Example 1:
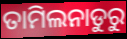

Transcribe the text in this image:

ତାମିଲନାଡୁରୁ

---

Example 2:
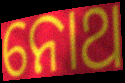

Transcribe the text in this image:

ନୋଥ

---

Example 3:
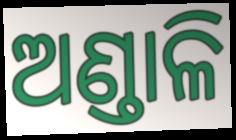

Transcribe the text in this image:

ଅଣ୍ଡାଳି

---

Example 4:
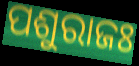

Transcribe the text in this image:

ପଶୁରାଜଃ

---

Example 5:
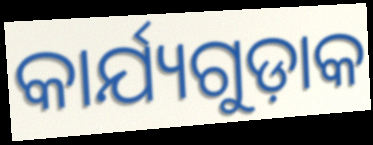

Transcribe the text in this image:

କାର୍ଯ୍ୟଗୁଡ଼ାକ